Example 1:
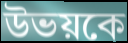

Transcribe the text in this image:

উভয়কে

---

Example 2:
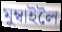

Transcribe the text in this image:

মুম্বাইলৈ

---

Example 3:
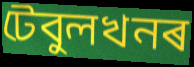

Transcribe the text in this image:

টেবুলখনৰ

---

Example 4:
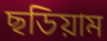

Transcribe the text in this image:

ছডিয়াম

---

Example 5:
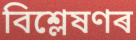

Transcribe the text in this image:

বিশ্লেষণৰ